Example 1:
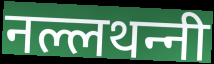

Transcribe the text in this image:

नल्लथन्नी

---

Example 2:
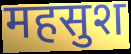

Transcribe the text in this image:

महसुश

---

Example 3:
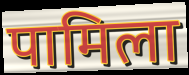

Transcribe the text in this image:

पामिला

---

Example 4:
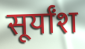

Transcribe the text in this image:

सूर्यांश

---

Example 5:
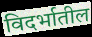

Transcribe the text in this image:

विदर्भातील